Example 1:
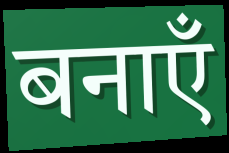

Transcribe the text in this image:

बनाएँ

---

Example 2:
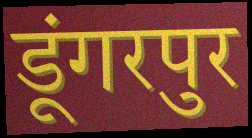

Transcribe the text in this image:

डूंगरपुर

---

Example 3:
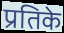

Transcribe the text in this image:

प्रतिके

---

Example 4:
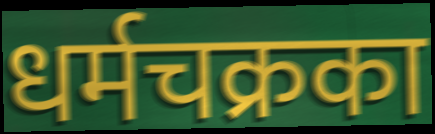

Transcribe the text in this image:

धर्मचक्रका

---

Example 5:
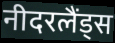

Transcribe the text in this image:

नीदरलैंड्स